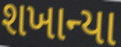
શખાન્યા